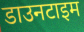
डाउनटाइम